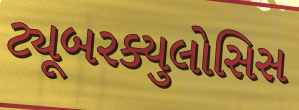
ટ્યૂબરક્યુલોસિસ